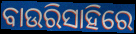
ବାଉରିସାହିରେ